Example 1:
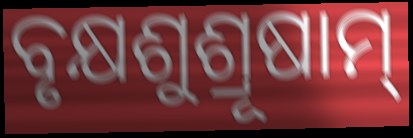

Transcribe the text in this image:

ବୃକ୍ଷଶୁଶ୍ରୂଷାମ୍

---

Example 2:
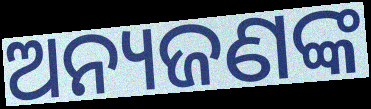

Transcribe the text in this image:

ଅନ୍ୟଜଣଙ୍କ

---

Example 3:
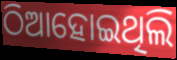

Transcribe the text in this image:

ଠିଆହୋଇଥିଲି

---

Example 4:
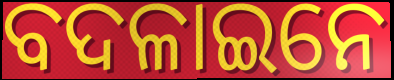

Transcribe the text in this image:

ବଦଳାଇନେ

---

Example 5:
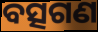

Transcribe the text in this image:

ବତ୍ସଗଣ